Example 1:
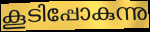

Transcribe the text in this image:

കൂടിപ്പോകുന്നു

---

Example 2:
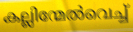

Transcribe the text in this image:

കല്ലിന്മേൽവെച്ച്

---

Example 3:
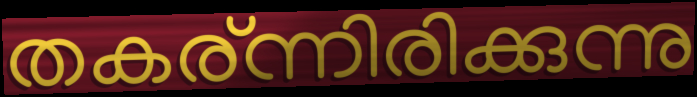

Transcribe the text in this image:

തകര്ന്നിരിക്കുന്നു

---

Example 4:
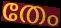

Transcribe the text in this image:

തേം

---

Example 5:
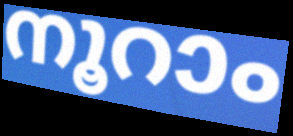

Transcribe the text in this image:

നൂറാം